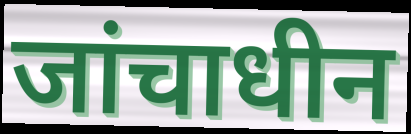
जांचाधीन